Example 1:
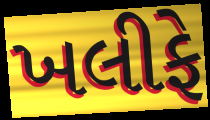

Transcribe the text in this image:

ખલીફે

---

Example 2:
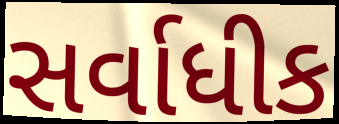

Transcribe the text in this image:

સર્વાધીક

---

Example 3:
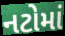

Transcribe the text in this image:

નટોમાં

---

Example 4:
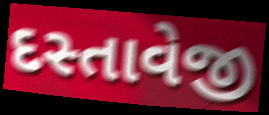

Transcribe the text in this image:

દસ્તાવેજી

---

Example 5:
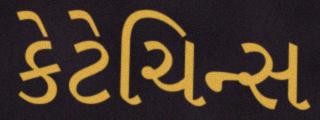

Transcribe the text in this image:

કેટેચિન્સ